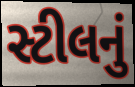
સ્ટીલનું